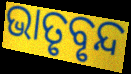
ଭାତୃବୃନ୍ଦ